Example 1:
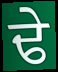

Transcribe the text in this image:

ਢੇ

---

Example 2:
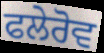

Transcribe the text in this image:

ਫਲੇਰੋਵ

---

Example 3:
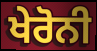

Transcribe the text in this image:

ਖੇਰੋਨੀ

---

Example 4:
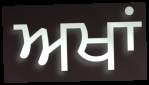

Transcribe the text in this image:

ਅਖਾਂ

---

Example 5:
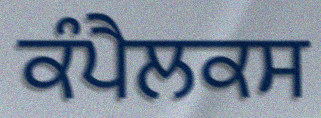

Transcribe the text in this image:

ਕੰਪੈਲਕਸ